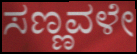
ಸಣ್ಣವಳೇ